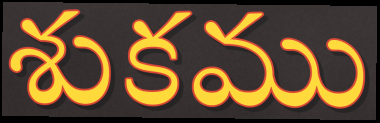
శుకము